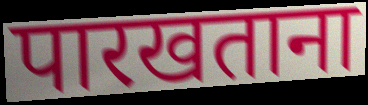
पारखताना